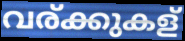
വര്ക്കുകള്